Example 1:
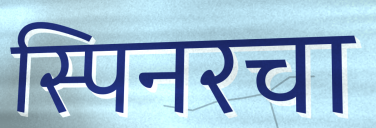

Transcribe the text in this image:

स्पिनरचा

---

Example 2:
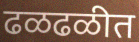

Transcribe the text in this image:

ढळढळीत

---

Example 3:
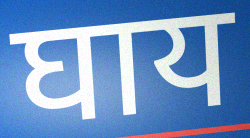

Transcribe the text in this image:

घाय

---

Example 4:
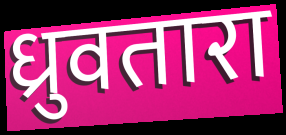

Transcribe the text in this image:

ध्रुवतारा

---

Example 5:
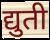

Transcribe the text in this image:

द्युती